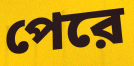
পেরে